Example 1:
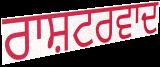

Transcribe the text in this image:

ਰਾਸ਼ਟਰਵਾਦ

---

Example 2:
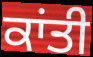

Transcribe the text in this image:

ਕਾਂਤੀ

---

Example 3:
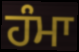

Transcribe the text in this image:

ਹੰਮਾ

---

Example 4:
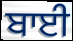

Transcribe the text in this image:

ਬਾਈ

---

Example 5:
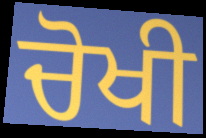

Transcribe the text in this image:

ਚੋਖੀ